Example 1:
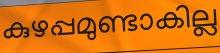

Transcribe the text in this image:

കുഴപ്പമുണ്ടാകില്ല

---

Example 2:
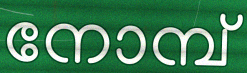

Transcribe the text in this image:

നോമ്പ്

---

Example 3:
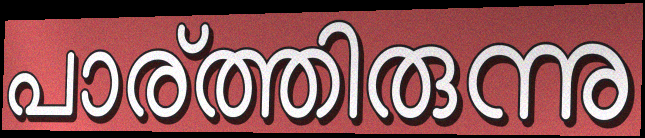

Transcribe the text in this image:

പാര്ത്തിരുന്നു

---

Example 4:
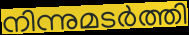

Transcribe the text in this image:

നിന്നുമടർത്തി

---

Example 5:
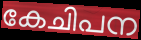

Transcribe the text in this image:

കേചിപന